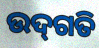
ଉଦ୍‌ଗତି